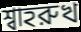
শ্বাহৰুখ